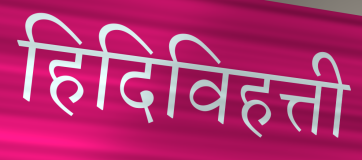
हिदिविहत्ती